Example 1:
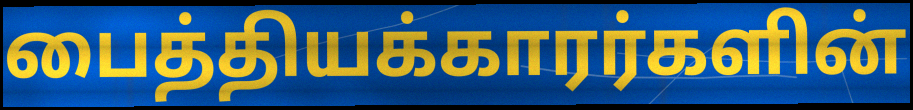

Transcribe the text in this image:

பைத்தியக்காரர்களின்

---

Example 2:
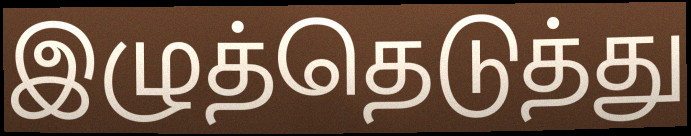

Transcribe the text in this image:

இழுத்தெடுத்து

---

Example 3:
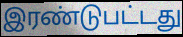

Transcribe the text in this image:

இரண்டுபட்டது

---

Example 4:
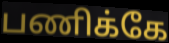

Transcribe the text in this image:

பணிக்கே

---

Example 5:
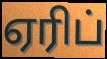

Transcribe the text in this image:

ஏரிப்